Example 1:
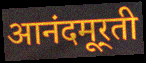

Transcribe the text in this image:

आनंदमूर्ती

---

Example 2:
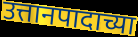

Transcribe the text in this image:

उत्तानपादाच्या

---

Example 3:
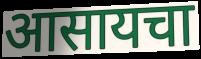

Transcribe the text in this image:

आसायचा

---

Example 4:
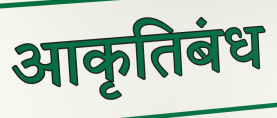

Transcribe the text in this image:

आकृतिबंध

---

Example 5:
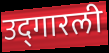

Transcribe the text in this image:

उद्‌गारली